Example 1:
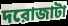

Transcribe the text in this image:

দরোজাটা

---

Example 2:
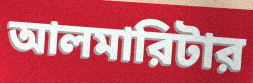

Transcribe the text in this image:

আলমারিটার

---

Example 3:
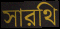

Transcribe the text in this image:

সারথি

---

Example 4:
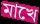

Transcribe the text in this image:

মাখে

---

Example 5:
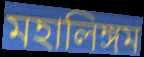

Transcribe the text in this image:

মহালিঙ্গম